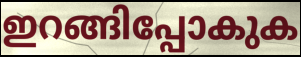
ഇറങ്ങിപ്പോകുക